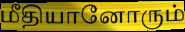
மீதியானோரும்